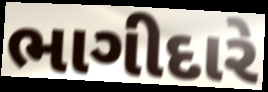
ભાગીદારે